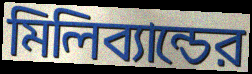
মিলিব্যান্ডের